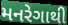
મનરેગાથી